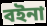
বইনা